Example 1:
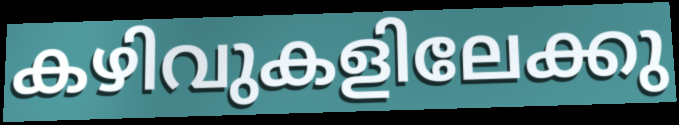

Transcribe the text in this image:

കഴിവുകളിലേക്കു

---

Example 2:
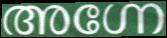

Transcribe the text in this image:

അഗ്നേ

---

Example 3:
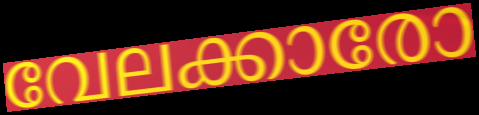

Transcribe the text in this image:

വേലക്കാരോ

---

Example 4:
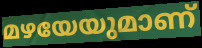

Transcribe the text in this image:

മഴയേയുമാണ്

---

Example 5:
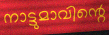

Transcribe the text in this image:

നാട്ടുമാവിന്റെ